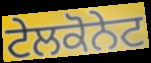
ਟੇਲਕੋਨੇਟ